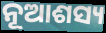
ନୂଆଶସ୍ୟ